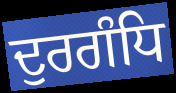
ਦੁਰਗੰਧਿ